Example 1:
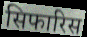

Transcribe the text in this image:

सिफारिस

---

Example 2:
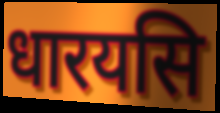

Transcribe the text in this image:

धारयसि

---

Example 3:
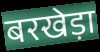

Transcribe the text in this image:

बरखेड़ा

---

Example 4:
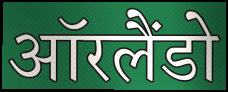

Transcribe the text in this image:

ऑरलैंडो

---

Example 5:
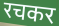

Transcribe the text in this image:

रचकर